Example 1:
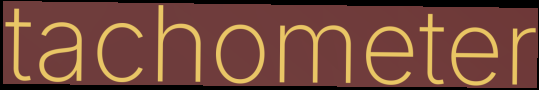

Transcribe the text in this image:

tachometer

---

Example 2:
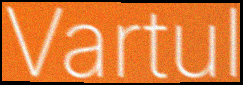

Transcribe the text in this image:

Vartul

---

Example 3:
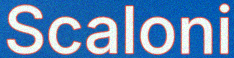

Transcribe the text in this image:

Scaloni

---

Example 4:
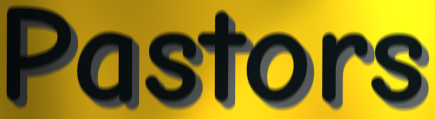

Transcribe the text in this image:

Pastors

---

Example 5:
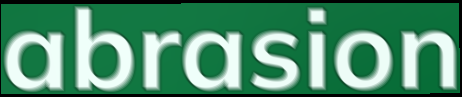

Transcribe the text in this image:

abrasion